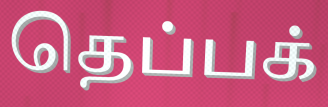
தெப்பக்